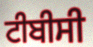
ਟੀਬੀਸੀ